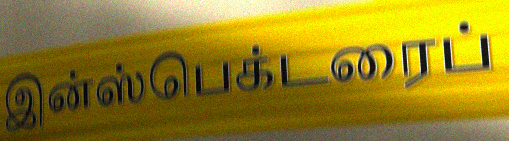
இன்ஸ்பெக்டரைப்